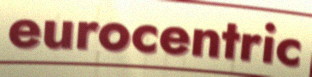
eurocentric